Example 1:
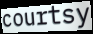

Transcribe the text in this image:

courtsy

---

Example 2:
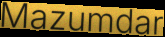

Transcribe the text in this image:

Mazumdar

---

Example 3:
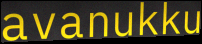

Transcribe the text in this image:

avanukku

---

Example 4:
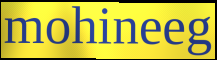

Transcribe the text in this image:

mohineeg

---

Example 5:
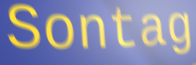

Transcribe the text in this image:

Sontag